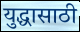
युद्धासाठी